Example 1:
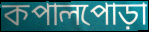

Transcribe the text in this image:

কপালপোড়া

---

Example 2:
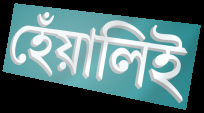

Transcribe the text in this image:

হেঁয়ালিই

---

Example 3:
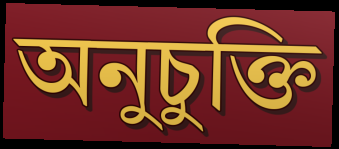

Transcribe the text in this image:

অনুচুক্তি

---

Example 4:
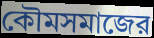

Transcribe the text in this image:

কৌমসমাজের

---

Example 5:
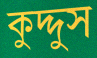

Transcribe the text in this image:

কুদ্দুস